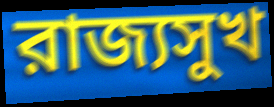
রাজ্যসুখ